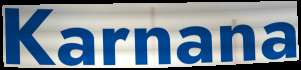
Karnana